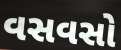
વસવસો